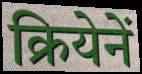
क्रियेनें